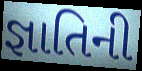
જ્ઞાતિની